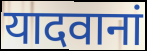
यादवानां